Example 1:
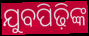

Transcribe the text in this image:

ଯୁବପିଢ଼ିଙ୍କ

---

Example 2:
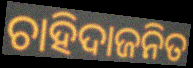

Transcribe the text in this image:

ଚାହିଦାଜନିତ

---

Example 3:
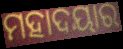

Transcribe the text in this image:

ମହାଦୟାର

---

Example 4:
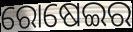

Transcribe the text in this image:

ରୋଷେଇର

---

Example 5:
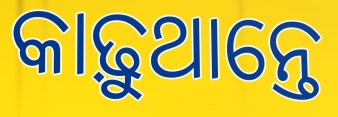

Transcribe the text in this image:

କାଢ଼ୁଥାନ୍ତେ